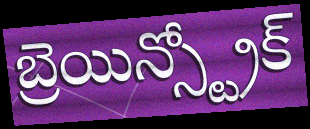
బ్రెయిన్స్ట్రోక్